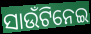
ସାଉଁଟିନେଇ